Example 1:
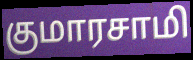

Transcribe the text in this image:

குமாரசாமி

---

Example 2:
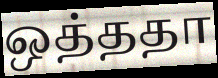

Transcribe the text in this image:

ஒத்ததா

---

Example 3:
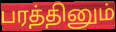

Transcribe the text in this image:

பரத்தினும்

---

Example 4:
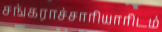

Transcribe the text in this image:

சங்கராச்சாரியாரிடம்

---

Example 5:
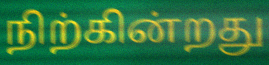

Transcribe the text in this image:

நிற்கின்றது